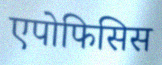
एपोफिसिस